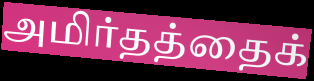
அமிர்தத்தைக்